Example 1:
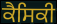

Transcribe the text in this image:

ਕੈਸਿਕੀ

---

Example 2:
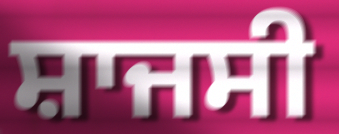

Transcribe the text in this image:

ਸ਼ਾਜਸੀ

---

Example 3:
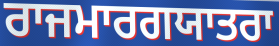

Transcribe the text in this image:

ਰਾਜਮਾਰਗਯਾਤਰਾ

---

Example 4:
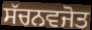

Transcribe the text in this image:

ਸੱਚਨਵਜੋਤ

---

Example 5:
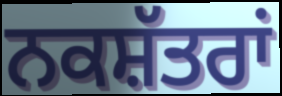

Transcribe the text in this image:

ਨਕਸ਼ੱਤਰਾਂ